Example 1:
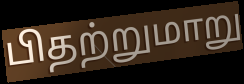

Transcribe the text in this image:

பிதற்றுமாறு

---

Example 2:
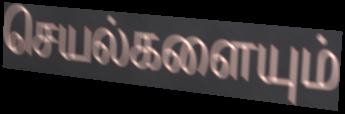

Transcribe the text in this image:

செயல்களையும்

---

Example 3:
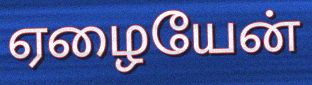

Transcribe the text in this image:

ஏழையேன்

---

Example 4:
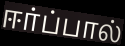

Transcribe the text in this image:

ஈர்ப்பால்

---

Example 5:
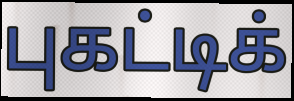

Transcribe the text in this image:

புகட்டிக்